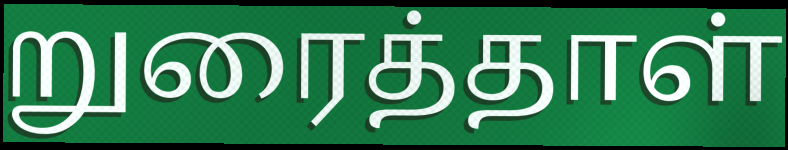
றுரைத்தாள்